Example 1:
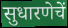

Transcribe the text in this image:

सुधारणेचें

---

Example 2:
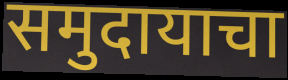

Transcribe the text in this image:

समुदायाचा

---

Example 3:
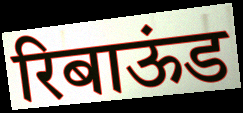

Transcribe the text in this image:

रिबाऊंड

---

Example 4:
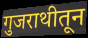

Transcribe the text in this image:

गुजराथीतून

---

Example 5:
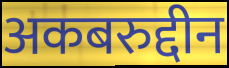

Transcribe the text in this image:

अकबरुद्दीन